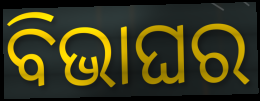
ବିଭାଘର